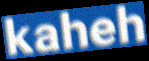
kaheh